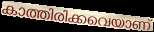
കാത്തിരിക്കവെയാണ്